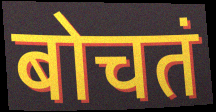
बोचतं